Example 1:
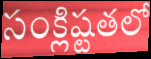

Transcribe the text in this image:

సంక్లిష్టతలో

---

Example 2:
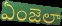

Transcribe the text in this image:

ఏంజెలా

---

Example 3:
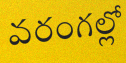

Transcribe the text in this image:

వరంగల్లో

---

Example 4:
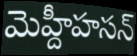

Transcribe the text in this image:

మెహ్దీహసన్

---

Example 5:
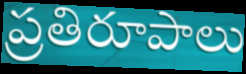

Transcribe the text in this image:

ప్రతిరూపాలు